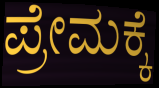
ಪ್ರೇಮಕ್ಕೆ